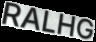
RALHG